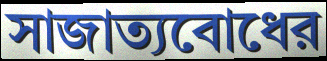
সাজাত্যবোধের